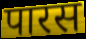
पारस